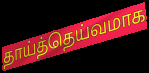
தாய்த்தெய்வமாக